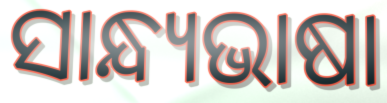
ସାନ୍ଧ୍ୟଭାଷା